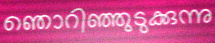
ഞൊറിഞ്ഞുടുക്കുന്നു